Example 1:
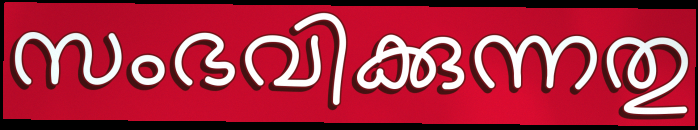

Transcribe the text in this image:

സംഭവിക്കുന്നതു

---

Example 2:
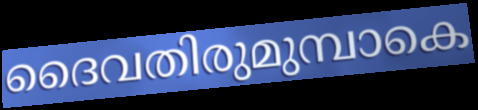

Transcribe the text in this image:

ദൈവതിരുമുമ്പാകെ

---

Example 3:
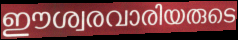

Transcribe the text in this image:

ഈശ്വരവാരിയരുടെ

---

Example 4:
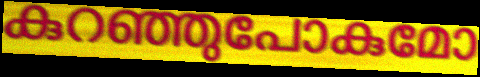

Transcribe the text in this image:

കുറഞ്ഞുപോകുമോ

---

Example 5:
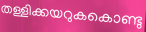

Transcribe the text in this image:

തള്ളിക്കയറുകകൊണ്ടു